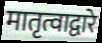
मातृत्वाद्वारे